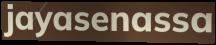
jayasenassa